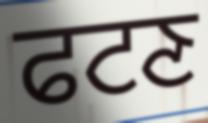
ਫਟਣ